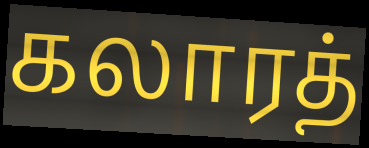
கலாரத்